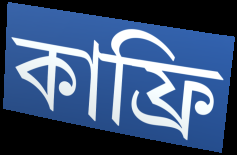
কাফ্রি